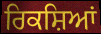
ਰਿਕਸ਼ਿਆਂ